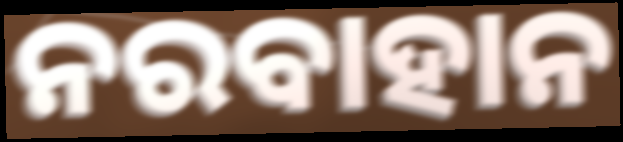
ନରବାହାନ